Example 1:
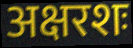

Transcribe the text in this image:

अक्षरशः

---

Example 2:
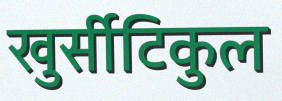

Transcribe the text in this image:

खुर्सीटिकुल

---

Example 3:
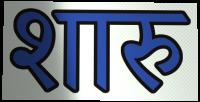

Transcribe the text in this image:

शारु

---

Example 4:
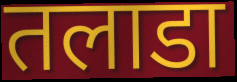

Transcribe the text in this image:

तलाडा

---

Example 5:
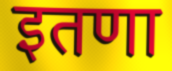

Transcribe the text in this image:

इतणा